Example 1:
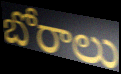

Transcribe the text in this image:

బోరాలు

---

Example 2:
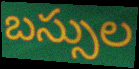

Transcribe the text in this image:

బస్సుల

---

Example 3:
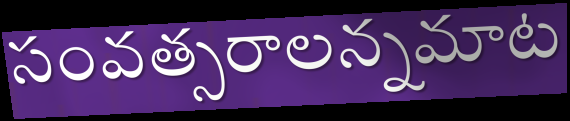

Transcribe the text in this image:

సంవత్సరాలన్నమాట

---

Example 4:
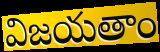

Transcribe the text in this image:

విజయతాం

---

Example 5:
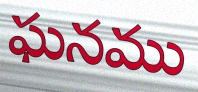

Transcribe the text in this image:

ఘనము